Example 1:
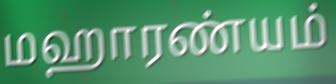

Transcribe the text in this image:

மஹாரண்யம்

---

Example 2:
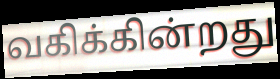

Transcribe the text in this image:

வகிக்கின்றது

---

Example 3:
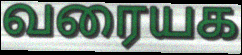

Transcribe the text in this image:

வரையக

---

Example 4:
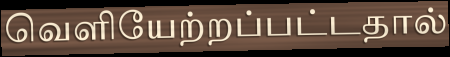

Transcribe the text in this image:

வெளியேற்றப்பட்டதால்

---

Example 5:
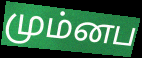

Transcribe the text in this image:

மும்னப